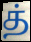
த்